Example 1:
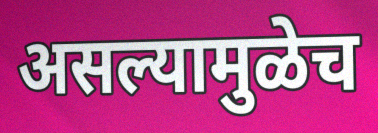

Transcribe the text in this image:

असल्यामुळेच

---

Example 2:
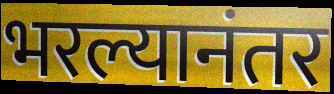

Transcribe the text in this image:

भरल्यानंतर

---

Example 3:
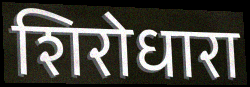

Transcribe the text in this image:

शिरोधारा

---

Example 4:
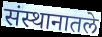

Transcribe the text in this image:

संस्थानातले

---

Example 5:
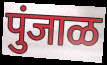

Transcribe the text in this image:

पुंजाळ